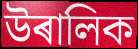
উৰালিক